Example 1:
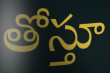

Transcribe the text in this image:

తోస్తూ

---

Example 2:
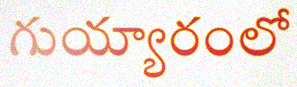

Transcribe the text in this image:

గుయ్యారంలో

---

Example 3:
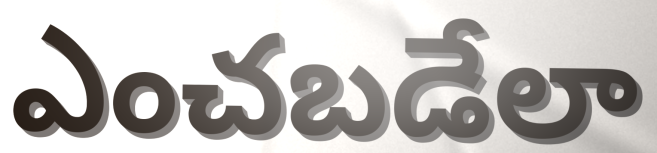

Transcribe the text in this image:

ఎంచబడేలా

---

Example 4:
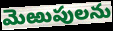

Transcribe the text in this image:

మెఱుపులను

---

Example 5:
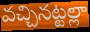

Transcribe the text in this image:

వచ్చినట్టల్లా